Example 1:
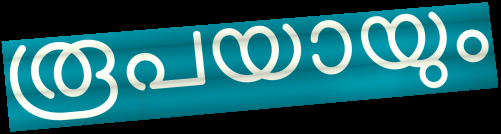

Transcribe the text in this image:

രൂപയായും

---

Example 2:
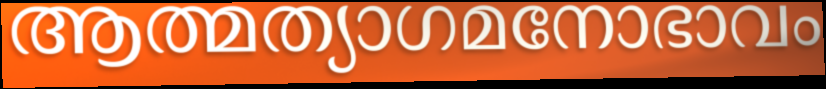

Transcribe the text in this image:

ആത്മത്യാഗമനോഭാവം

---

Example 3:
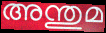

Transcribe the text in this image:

അന്തുമ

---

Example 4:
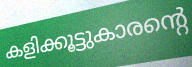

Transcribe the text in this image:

കളിക്കൂട്ടുകാരന്റെ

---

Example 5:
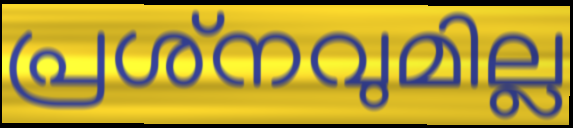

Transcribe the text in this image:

പ്രശ്‌നവുമില്ല